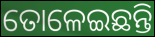
ତୋଳେଇଛନ୍ତି